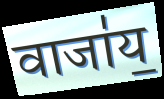
वाजा॑य॒